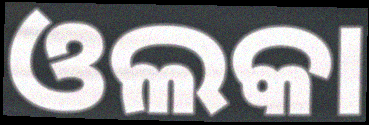
ଓଲକା